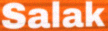
Salak